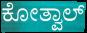
ಕೋತ್ವಾಲ್